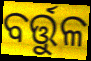
ବର୍ତ୍ତୁଳ